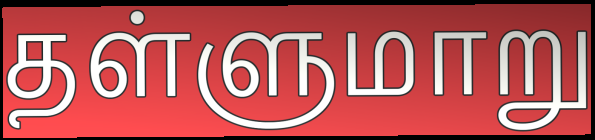
தள்ளுமாறு